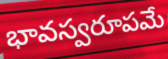
భావస్వరూపమే